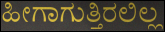
ಹೀಗಾಗುತ್ತಿರಲಿಲ್ಲ